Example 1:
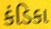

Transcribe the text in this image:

કંડિકા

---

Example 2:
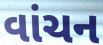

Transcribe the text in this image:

વાંચન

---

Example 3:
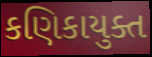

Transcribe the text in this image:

કણિકાયુક્ત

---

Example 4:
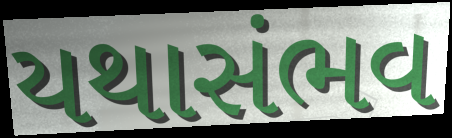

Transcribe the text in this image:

યથાસંભવ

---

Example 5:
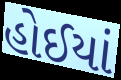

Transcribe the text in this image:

હોઈયાં